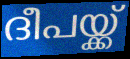
ദീപയ്ക്ക്